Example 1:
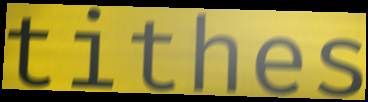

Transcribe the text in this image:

tithes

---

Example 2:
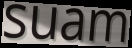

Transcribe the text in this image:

suam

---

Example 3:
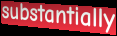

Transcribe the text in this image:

substantially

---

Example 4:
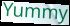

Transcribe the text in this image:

Yummy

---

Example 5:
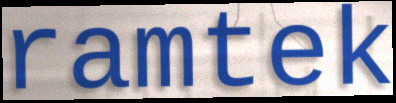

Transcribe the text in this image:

ramtek